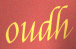
oudh